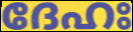
ദേഹഃ